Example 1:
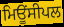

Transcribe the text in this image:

ਮਿਊਂਸੀਪਲ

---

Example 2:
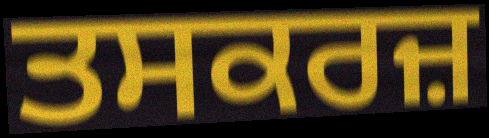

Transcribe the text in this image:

ਤਸਕਰਜ਼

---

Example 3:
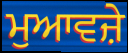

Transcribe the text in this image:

ਮੁਆਵਜ਼ੇ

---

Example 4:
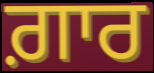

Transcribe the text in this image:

ਗ਼ਾਰ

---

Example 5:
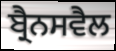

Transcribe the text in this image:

ਬ੍ਰੈਨਸਵੈਲ